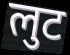
लुट